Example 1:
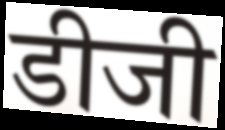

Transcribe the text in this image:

डीजी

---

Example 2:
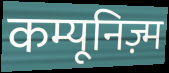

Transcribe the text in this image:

कम्यूनिज़्म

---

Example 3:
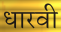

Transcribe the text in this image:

धारवी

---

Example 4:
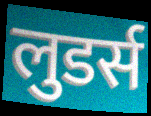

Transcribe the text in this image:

लुडर्स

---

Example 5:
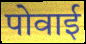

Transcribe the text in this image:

पोवाई